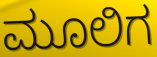
ಮೂಲಿಗ